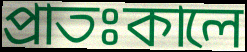
প্রাতঃকালে